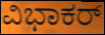
ವಿಭಾಕರ್